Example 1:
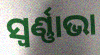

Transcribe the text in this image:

ସ୍ୱର୍ଣ୍ଣାଭା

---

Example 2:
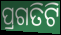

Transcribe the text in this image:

ପ୍ରଗତିଟି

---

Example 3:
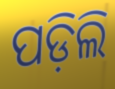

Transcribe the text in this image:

ପଡ଼ିଲି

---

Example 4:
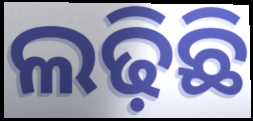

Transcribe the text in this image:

ଲଢ଼ିଛି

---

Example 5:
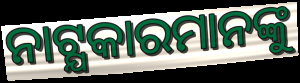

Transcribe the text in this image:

ନାଟ୍ଯକାରମାନଙ୍କୁ